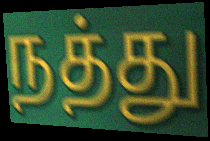
நத்து